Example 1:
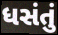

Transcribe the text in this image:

ધસંતું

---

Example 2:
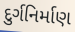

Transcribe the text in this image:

દુર્ગનિર્માણ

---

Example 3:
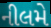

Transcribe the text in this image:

નીલમે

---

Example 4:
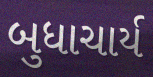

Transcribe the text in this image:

બુધાચાર્ય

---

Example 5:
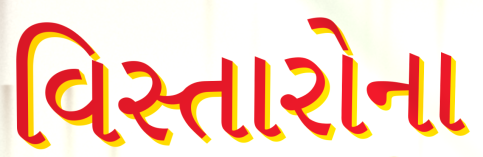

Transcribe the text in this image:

વિસ્તારોના